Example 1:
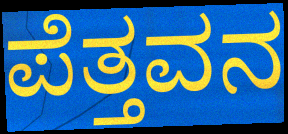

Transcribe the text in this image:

ಪೆತ್ತವನ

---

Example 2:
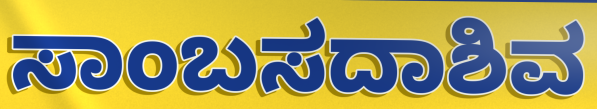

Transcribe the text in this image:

ಸಾಂಬಸದಾಶಿವ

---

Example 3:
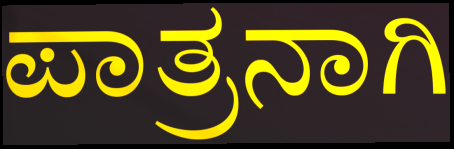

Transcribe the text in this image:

ಪಾತ್ರನಾಗಿ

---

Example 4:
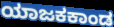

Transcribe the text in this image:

ಯಾಜಕಕಾಂಡ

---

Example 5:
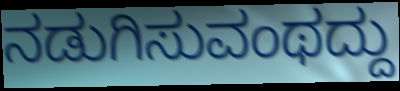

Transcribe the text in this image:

ನಡುಗಿಸುವಂಥದ್ದು